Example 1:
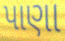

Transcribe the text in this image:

પાણા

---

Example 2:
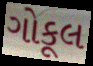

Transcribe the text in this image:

ગોકૂલ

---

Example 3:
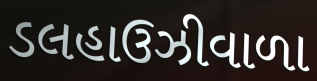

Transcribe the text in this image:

ડલહાઉઝીવાળા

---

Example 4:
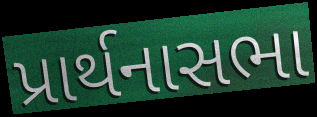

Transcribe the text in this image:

પ્રાર્થનાસભા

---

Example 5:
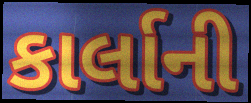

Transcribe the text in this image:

કાર્લાની